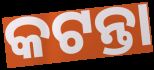
କଟନ୍ତା